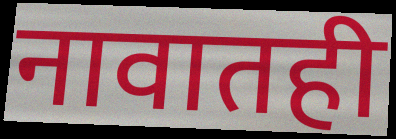
नावातही